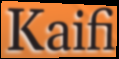
Kaifi